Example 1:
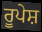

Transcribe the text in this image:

ਰੂਪੇਸ਼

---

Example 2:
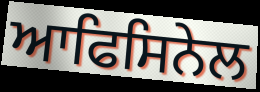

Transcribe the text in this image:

ਆਫਿਸਿਨੇਲ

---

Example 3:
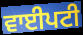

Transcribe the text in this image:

ਵਾਈਪਟੀ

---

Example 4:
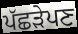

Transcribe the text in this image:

ਪੱਛੜੇਪਣ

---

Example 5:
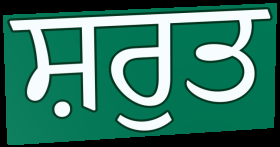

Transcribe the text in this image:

ਸ਼ਰੁਤ